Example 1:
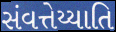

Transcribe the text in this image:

સંવત્તેય્યાતિ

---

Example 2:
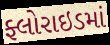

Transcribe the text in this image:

ફ્લોરાઇડમાં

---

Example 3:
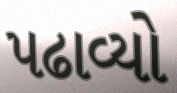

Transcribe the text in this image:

પઢાવ્યો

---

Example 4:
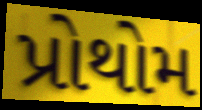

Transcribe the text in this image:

પ્રોથોમ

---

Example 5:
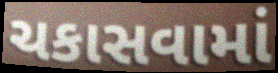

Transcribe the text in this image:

ચકાસવામાં